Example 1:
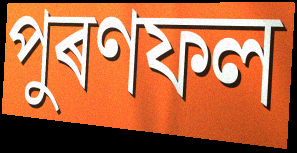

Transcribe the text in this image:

পুৰণফল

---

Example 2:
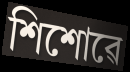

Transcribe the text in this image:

শিশোৱে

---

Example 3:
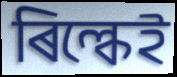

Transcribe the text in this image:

ৰিল্কেই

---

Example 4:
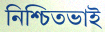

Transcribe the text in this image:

নিশ্চিতভাই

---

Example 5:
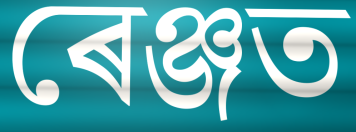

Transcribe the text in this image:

ৰেঞ্জত